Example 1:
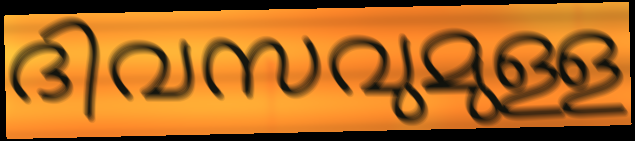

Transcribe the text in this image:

ദിവസവുമുള്ള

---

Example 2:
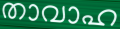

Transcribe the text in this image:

താവാഹ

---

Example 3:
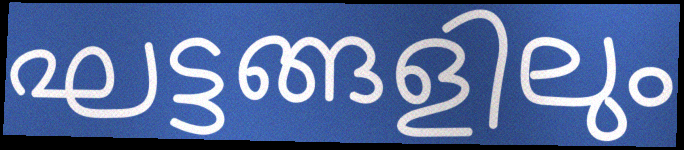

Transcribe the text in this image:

ഘട്ടങ്ങളിലും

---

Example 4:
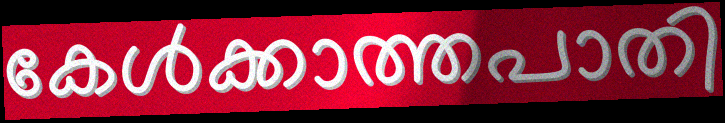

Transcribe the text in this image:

കേൾക്കാത്തപാതി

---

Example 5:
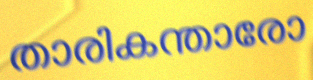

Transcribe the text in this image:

താരികന്താരോ